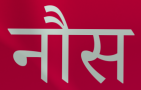
नौस